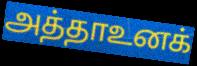
அத்தாஉனக்